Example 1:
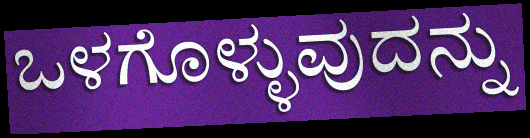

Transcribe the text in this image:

ಒಳಗೊಳ್ಳುವುದನ್ನು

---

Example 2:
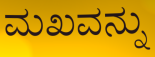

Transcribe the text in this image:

ಮಖವನ್ನು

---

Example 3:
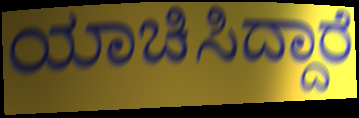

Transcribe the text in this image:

ಯಾಚಿಸಿದ್ದಾರೆ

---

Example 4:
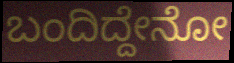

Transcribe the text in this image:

ಬಂದಿದ್ದೇನೋ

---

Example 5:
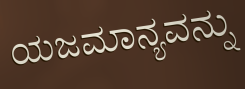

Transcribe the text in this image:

ಯಜಮಾನ್ಯವನ್ನು